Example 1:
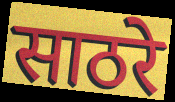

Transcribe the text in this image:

साठरे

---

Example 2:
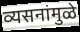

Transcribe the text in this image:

व्यसनांमुळे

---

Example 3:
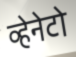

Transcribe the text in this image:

व्हेनेटो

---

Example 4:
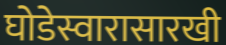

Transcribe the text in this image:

घोडेस्वारासारखी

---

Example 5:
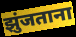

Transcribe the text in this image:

झुंजताना